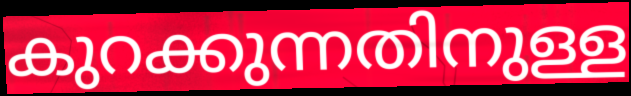
കുറക്കുന്നതിനുള്ള